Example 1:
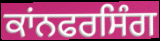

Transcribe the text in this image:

ਕਾਂਨਫਰਸਿੰਗ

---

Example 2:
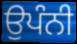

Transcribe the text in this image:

ਉਪੰਨੀ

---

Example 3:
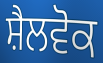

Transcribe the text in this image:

ਸ਼ੈਲਵੋਕ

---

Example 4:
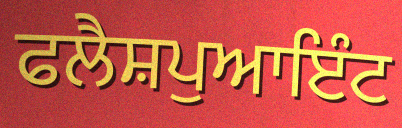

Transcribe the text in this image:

ਫਲੈਸ਼ਪੁਆਇੰਟ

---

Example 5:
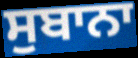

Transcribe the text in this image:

ਸੁਬਾਨਾ